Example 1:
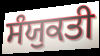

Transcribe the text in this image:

ਸੰਯੁਕਤੀ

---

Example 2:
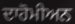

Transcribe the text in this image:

ਦਾਹੋਮੀਅਨ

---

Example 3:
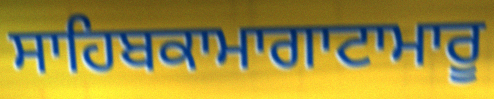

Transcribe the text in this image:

ਸਾਹਿਬਕਾਮਾਗਾਟਾਮਾਰੂ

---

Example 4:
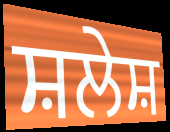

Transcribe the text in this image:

ਸ਼ਲੇਸ਼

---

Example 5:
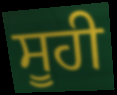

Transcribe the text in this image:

ਸੂਹੀ